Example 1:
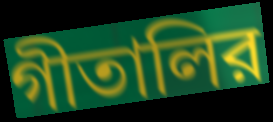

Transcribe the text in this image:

গীতালির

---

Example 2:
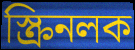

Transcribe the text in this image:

স্ক্রিনলক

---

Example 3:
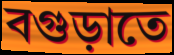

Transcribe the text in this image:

বগুড়াতে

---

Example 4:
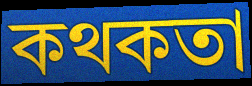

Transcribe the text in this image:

কথকতা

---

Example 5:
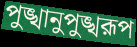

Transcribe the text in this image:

পুঙ্খানুপুঙ্খরূপ